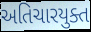
અતિચારયુક્ત